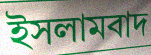
ইসলামবাদ